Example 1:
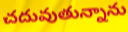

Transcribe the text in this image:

చదువుతున్నాను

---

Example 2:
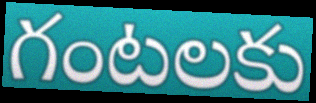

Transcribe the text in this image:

గంటలకు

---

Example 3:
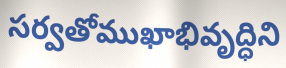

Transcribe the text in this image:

సర్వతోముఖాభివృద్ధిని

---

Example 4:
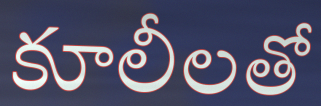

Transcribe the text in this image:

కూలీలతో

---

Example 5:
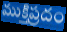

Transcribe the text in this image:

ముక్తిప్రదం